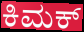
ಕಿಮಕ್